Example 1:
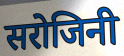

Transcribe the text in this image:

सरोजिनी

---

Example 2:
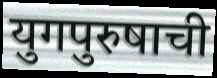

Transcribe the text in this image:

युगपुरुषाची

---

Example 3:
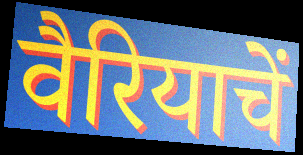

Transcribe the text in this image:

वैरियाचें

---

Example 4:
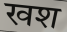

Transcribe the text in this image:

खश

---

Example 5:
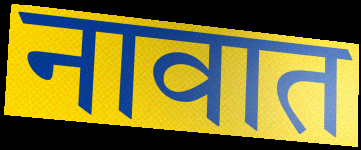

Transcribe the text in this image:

नावात